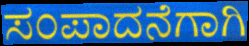
ಸಂಪಾದನೆಗಾಗಿ